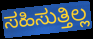
ಸಹಿಸುತ್ತಿಲ್ಲ